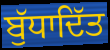
ਬੁੱਧਾਦਿੱਤ